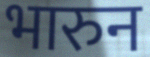
भारुन